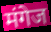
मंगेज